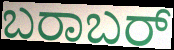
ಬರಾಬರ್